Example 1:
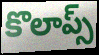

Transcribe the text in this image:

కొలాప్స్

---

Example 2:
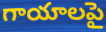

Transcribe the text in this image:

గాయాలపై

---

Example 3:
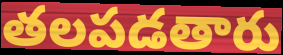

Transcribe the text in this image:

తలపడతారు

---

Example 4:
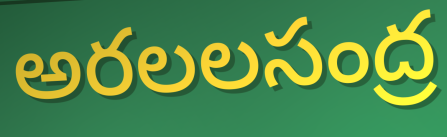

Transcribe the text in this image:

అరలలసంద్ర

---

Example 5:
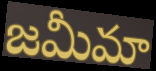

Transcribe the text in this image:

జమీమా